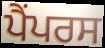
ਪੈਂਪਰਸ